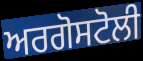
ਅਰਗੋਸਟੋਲੀ